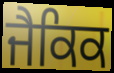
ਜੈਕਿਕ